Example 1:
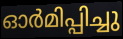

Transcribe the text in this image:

ഓർമിപ്പിച്ചു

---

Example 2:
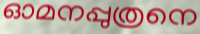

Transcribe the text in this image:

ഓമനപ്പുത്രനെ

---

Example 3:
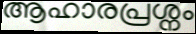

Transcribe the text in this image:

ആഹാരപ്രശ്നം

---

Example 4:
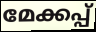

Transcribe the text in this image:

മേക്കപ്പ്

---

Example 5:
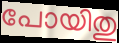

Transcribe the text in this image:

പോയിതു